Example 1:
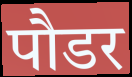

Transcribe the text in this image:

पौडर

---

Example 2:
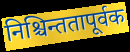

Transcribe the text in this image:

निश्चिन्ततापूर्वक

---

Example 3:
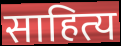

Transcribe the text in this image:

साहित्‍य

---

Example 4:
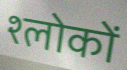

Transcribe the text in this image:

श्लोकों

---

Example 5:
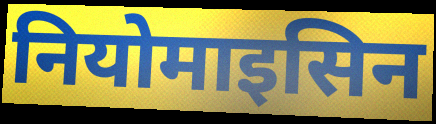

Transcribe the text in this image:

नियोमाइसिन